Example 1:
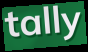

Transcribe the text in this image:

tally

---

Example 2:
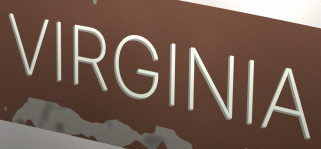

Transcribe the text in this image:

VIRGINIA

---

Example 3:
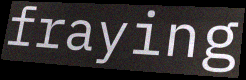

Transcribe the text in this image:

fraying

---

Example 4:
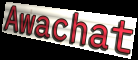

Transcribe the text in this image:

Awachat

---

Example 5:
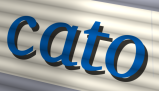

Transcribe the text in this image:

cato